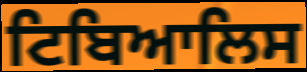
ਟਿਬਿਆਲਿਸ